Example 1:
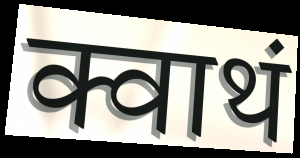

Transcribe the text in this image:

क्वाथं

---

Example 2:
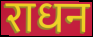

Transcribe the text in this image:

राधन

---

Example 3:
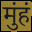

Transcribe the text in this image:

मुंहं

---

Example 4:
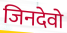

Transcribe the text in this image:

जिनदेवो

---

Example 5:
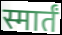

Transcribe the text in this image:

स्मार्तं